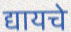
द्यायचे